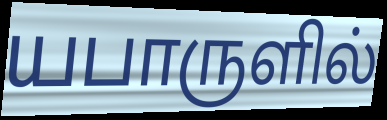
யபாருளில்